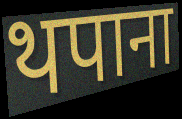
थपाना